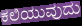
ಕಲಿಯುವುದು